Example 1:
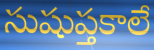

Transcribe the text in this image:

సుషుప్తకాలే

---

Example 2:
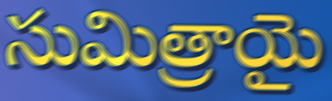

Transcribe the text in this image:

సుమిత్రాయై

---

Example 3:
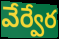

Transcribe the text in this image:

వేర్వేర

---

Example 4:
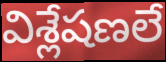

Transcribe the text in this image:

విశ్లేషణలే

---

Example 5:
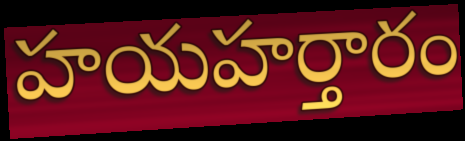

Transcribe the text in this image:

హయహర్తారం